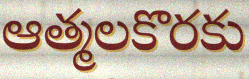
ఆత్మలకొరకు